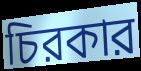
চিরকার